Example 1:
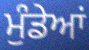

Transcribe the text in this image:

ਮੁੰਡੇਆਂ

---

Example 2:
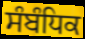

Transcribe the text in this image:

ਸੰਬੰਧਿਕ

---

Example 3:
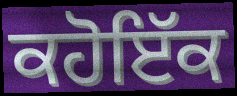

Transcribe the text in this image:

ਕਹੋਇੱਕ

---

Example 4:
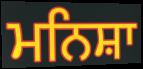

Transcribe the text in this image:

ਮਨਿਸ਼ਾ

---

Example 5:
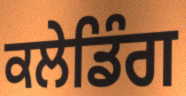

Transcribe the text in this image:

ਕਲੇਡਿੰਗ